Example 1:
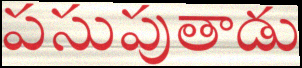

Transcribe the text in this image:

పసుపుతాడు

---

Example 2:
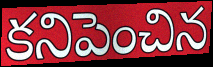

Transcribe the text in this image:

కనిపెంచిన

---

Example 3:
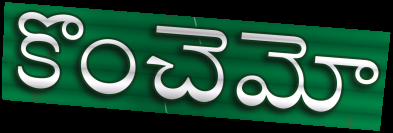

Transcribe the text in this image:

కొంచెమో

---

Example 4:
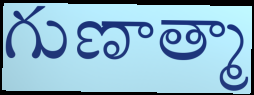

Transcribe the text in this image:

గుణాత్మా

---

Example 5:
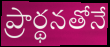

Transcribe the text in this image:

ప్రార్థనతోనే